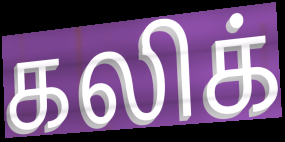
கலிக்